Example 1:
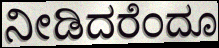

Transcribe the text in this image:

ನೀಡಿದರೆಂದೂ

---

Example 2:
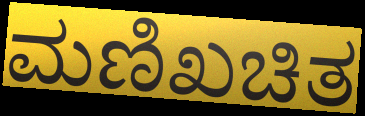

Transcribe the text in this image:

ಮಣಿಖಚಿತ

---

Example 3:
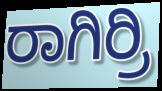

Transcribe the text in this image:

ರಾಗಿರ್ರಿ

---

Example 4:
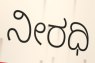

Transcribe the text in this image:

ನೀರಧಿ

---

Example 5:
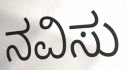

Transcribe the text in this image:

ನವಿಸು